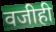
वजीही